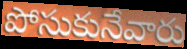
పోసుకునేవారు